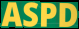
ASPD